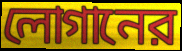
লোগানের